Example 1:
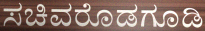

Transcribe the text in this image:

ಸಚಿವರೊಡಗೂಡಿ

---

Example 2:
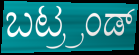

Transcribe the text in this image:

ಬಟ್ರ್ರಂಡ್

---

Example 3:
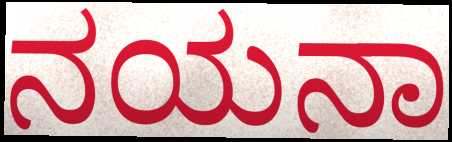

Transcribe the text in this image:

ನಯನಾ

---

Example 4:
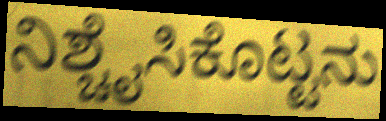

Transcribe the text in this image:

ನಿಶ್ಚೈಸಿಕೊಟ್ಟನು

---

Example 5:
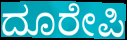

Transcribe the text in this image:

ದೂರೇಪಿ